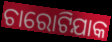
ଚାରୋଟିଯାକ